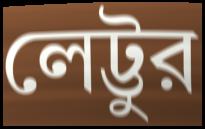
লেট্টুর